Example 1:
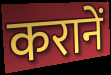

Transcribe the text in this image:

करानें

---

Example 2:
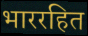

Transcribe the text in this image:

भाररहित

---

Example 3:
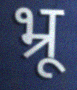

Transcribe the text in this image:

भ्रू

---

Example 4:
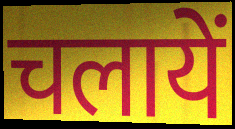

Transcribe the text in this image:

चलायें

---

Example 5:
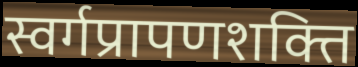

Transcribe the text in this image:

स्वर्गप्रापणशक्ति